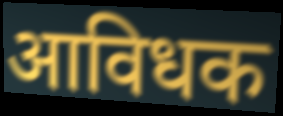
आविधक